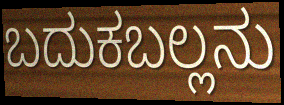
ಬದುಕಬಲ್ಲನು